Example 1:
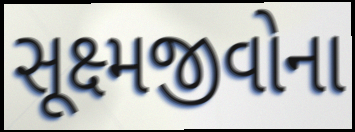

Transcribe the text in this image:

સૂક્ષ્મજીવોના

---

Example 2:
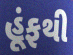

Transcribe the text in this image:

હૂંફથી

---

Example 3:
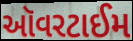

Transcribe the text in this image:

ઑવરટાઈમ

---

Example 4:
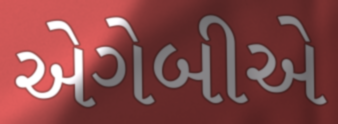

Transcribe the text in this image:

એગેબીએ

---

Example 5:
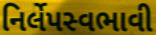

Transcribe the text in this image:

નિર્લેપસ્વભાવી